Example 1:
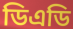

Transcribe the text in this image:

ডিএডি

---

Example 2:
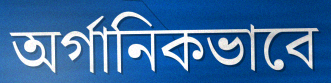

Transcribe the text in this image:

অর্গানিকভাবে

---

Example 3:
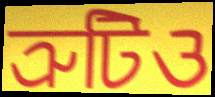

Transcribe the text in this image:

ত্রুটিও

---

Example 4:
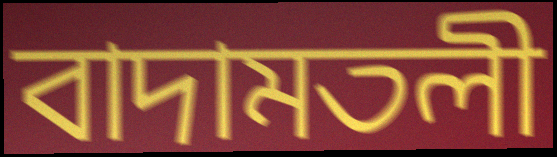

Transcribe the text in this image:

বাদামতলী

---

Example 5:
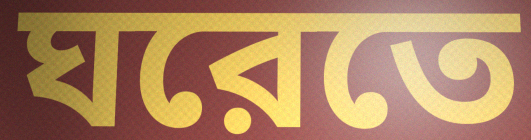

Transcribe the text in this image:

ঘরেতে